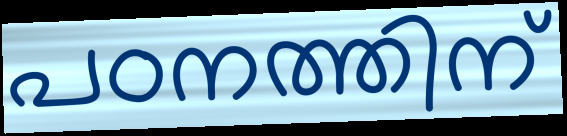
പഠനത്തിന്